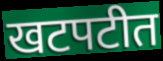
खटपटीत